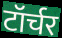
टॉर्चर